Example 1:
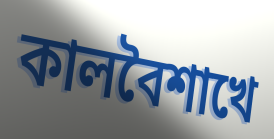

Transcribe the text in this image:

কালবৈশাখে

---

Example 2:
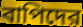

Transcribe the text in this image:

বাপিদের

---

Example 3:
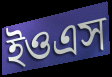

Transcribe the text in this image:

ইওএস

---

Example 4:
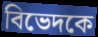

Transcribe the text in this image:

বিভেদকে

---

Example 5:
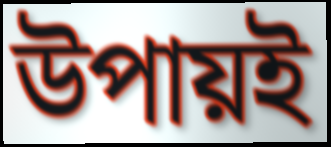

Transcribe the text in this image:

উপায়ই